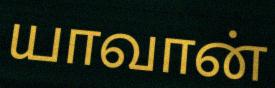
யாவான்